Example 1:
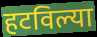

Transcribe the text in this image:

हटविल्या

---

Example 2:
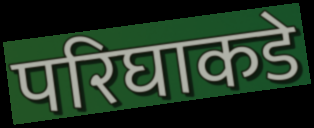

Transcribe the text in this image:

परिघाकडे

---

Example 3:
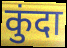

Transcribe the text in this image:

कुंदा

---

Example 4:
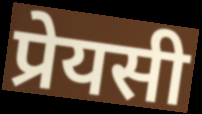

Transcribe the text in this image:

प्रेयसी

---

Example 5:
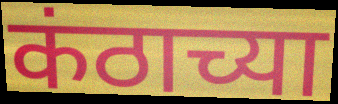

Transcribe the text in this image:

कंठाच्या